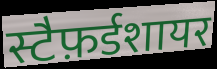
स्टैफ़र्डशायर